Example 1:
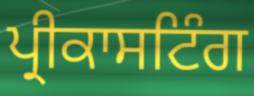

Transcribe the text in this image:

ਪ੍ਰੀਕਾਸਟਿੰਗ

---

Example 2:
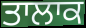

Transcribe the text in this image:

ਤਾਲਾਕ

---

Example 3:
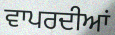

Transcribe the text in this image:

ਵਾਪਰਦੀਆਂ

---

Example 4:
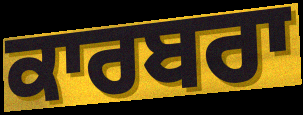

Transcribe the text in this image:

ਕਾਰਬਰਾ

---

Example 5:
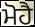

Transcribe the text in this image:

ਮੋਹੈ